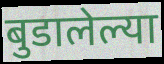
बुडालेल्या